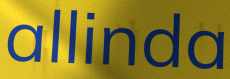
allinda